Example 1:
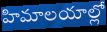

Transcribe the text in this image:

హిమాలయాల్లో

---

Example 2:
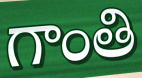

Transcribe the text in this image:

గాంతి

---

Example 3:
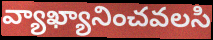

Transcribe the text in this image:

వ్యాఖ్యానించవలసి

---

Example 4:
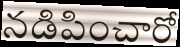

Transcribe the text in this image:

నడిపించారో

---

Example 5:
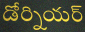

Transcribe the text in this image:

డోర్నియర్